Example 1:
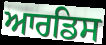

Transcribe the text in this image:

ਆਰਡਿਸ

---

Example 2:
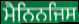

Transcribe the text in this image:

ਮੈਨਿਨਜਿਸ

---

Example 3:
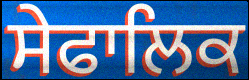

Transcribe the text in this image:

ਸੇਫਾਲਿਕ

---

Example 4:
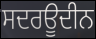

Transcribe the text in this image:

ਸਦਰਊਦੀਨ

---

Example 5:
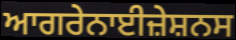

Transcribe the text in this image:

ਆਗਰੇਨਾਈਜ਼ੇਸ਼ਨਸ